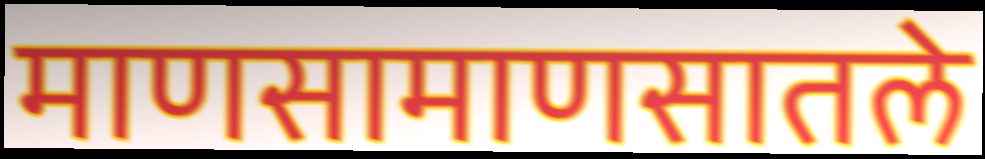
माणसामाणसातले